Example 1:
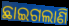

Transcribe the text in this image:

ଛାଇଗଲାଣି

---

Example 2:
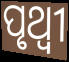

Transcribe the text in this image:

ପୃଥ୍ଵୀ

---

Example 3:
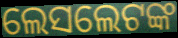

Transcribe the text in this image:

ଲେସଲେଟଙ୍କ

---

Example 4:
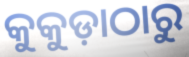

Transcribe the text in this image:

କୁକୁଡ଼ାଠାରୁ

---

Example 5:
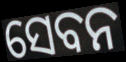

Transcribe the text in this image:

ସେବନ